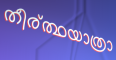
തീര്ത്ഥയാത്രാ